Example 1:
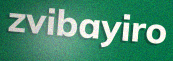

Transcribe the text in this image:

zvibayiro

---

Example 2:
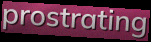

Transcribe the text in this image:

prostrating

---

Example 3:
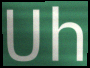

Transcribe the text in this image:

Uh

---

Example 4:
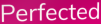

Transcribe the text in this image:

Perfected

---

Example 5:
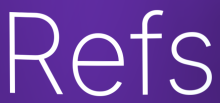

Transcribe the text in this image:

Refs